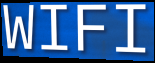
WIFI